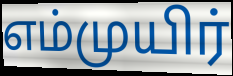
எம்முயிர்